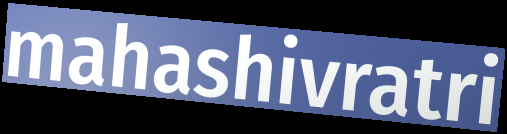
mahashivratri